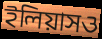
ইলিয়াসও